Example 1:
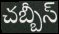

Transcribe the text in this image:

చబ్బీస్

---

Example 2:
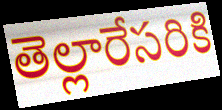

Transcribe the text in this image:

తెల్లారేసరికి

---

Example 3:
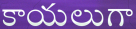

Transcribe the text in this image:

కాయలుగా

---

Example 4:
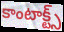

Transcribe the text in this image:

కాంటాక్ట్స్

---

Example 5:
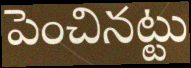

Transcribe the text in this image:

పెంచినట్టు